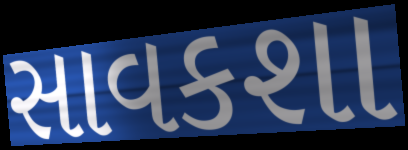
સાવકશા